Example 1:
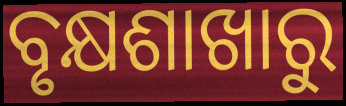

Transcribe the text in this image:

ବୃକ୍ଷଶାଖାରୁ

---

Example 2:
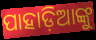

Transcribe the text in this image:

ପାହାଡ଼ିଆଙ୍କୁ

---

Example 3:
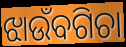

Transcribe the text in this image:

ଝାଉଁବଗିଚା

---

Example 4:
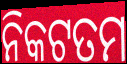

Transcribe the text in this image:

ନିକଟତମ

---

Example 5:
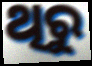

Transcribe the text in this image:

ଥିରୁ